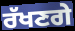
ਰੱਖਣਗੇ